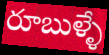
రూబుళ్ళే